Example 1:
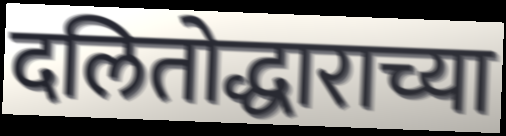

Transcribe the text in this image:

दलितोद्धाराच्या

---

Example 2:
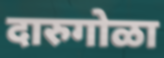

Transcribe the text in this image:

दारुगोळा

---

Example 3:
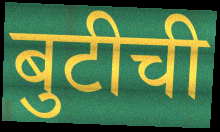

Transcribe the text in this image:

बुटीची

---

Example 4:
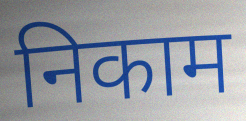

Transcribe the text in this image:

निकाम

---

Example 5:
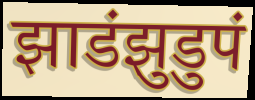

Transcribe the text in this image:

झाडंझुडुपं